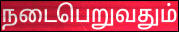
நடைபெறுவதும்